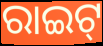
ରାଇଟ୍